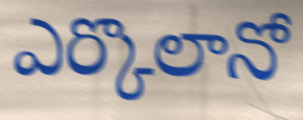
ఎర్కొలానో